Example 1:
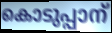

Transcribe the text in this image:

കൊടുപ്പാന്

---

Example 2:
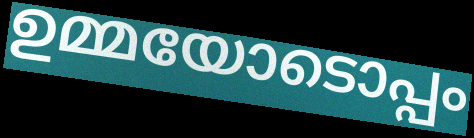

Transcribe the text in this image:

ഉമ്മയോടൊപ്പം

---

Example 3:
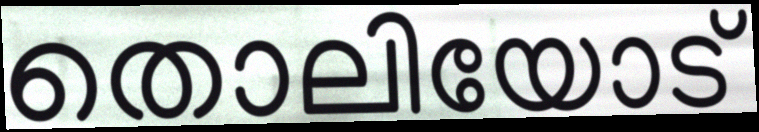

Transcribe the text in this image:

തൊലിയോട്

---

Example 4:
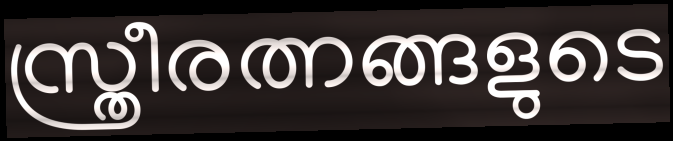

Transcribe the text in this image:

സ്ത്രീരത്നങ്ങളുടെ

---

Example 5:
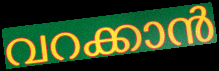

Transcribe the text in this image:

വറക്കാൻ